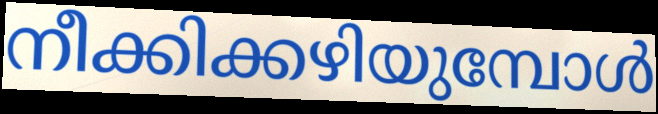
നീക്കിക്കഴിയുമ്പോൾ